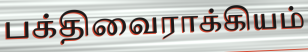
பக்திவைராக்கியம்